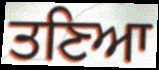
ਤਣਿਆ